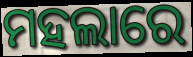
ମହଲାରେ